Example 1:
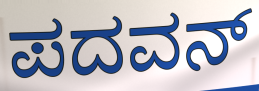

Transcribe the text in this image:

ಪದವನ್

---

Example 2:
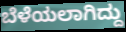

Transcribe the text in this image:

ಬೆಳೆಯಲಾಗಿದ್ದು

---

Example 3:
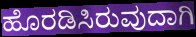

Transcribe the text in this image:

ಹೊರಡಿಸಿರುವುದಾಗಿ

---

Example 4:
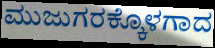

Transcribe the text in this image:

ಮುಜುಗರಕ್ಕೊಳಗಾದ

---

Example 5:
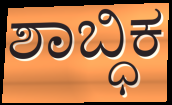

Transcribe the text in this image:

ಶಾಬ್ಧಿಕ